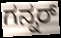
ಗನ್ನರ್